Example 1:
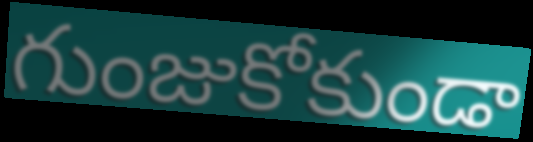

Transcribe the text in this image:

గుంజుకోకుండా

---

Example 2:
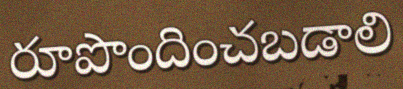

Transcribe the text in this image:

రూపొందించబడాలి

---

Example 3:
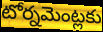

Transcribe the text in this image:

టోర్నమెంట్లకు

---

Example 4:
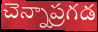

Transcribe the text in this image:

చెన్నాప్రగడ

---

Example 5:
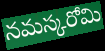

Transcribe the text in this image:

నమస్కరోమి